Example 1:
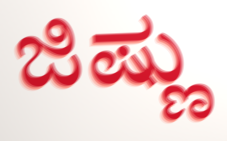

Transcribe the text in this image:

ಜಿಷ್ಣು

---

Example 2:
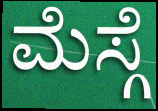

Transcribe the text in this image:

ಮೆಸ್ಗೆ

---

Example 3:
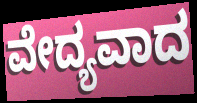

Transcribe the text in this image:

ವೇದ್ಯವಾದ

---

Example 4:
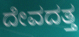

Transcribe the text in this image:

ದೇವದತ್ತ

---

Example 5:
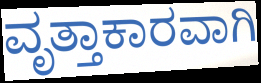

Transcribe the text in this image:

ವೃತ್ತಾಕಾರವಾಗಿ